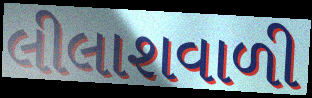
લીલાશવાળી